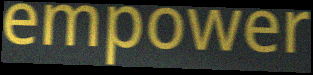
empower